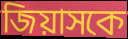
জিয়াসকে